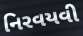
નિરવયવી